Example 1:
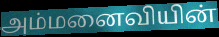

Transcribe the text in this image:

அம்மனைவியின்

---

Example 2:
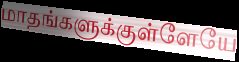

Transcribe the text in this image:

மாதங்களுக்குள்ளேயே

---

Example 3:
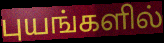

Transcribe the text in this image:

புயங்களில்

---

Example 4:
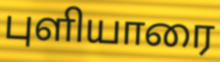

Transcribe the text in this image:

புளியாரை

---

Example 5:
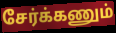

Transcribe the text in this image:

சேர்க்கணும்